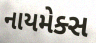
નાયમેક્સ